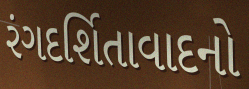
રંગદર્શિતાવાદનો